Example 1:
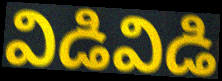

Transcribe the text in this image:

విడివిడి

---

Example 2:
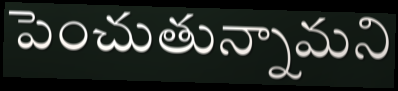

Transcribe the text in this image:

పెంచుతున్నామని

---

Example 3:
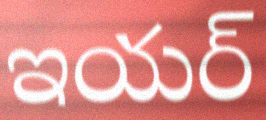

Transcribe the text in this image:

ఇయర్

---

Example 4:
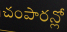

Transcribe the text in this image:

చంపారన్లో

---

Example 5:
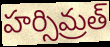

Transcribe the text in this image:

హర్సిమ్రత్